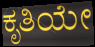
ಕೃತಿಯೇ